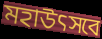
মহাউৎসবে